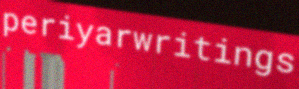
periyarwritings